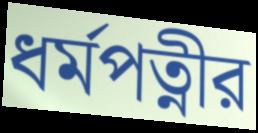
ধর্মপত্নীর